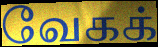
வேகக்